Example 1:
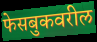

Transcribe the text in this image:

फेसबुकवरील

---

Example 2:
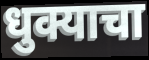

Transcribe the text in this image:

धुक्याचा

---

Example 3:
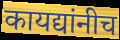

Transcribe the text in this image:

कायद्यांनीच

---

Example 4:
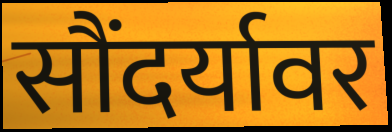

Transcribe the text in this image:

सौंदर्यावर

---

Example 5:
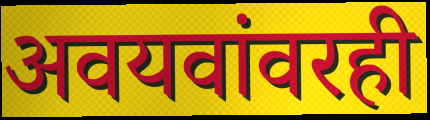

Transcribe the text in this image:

अवयवांवरही